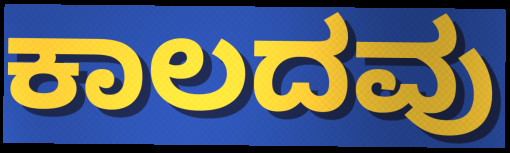
ಕಾಲದವು